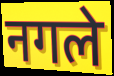
नगले